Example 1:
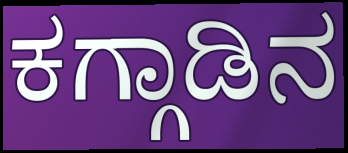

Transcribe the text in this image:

ಕಗ್ಗಾಡಿನ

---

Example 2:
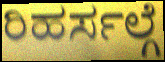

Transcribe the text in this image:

ರಿಹರ್ಸಲ್ಗೆ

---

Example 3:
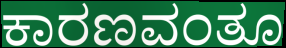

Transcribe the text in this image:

ಕಾರಣವಂತೂ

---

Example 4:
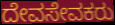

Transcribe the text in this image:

ದೇವಸೇವಕರು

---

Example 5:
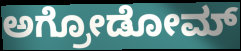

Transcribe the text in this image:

ಅಗ್ರೋಡೋಮ್